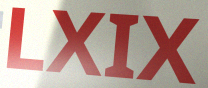
LXIX